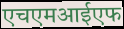
एचएमआईएफ